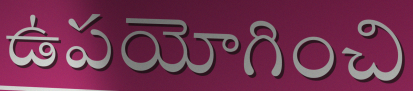
ఉపయోగించి